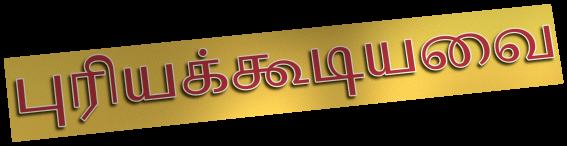
புரியக்கூடியவை